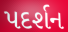
પદર્શન